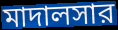
মাদালসার